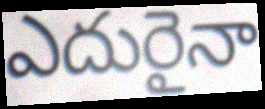
ఎదురైనా